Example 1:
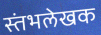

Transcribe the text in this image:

स्तंभलेखक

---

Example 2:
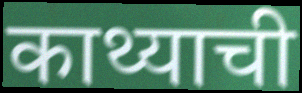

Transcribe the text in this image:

काथ्याची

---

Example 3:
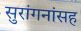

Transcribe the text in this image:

सुरांगनांसह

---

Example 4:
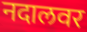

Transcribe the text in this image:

नदालवर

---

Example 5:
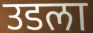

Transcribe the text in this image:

उडला